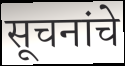
सूचनांचे